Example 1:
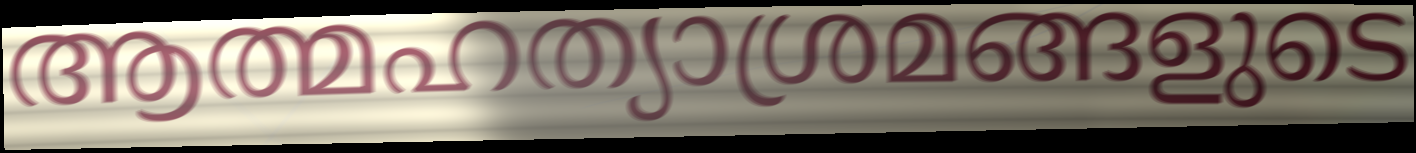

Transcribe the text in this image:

ആത്മഹത്യാശ്രമങ്ങളുടെ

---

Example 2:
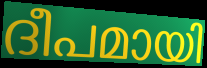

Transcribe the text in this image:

ദീപമായി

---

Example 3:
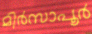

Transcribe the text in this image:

മിർസാപൂർ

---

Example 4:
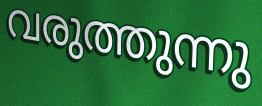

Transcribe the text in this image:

വരുത്തുന്നു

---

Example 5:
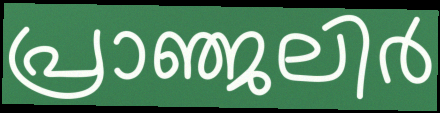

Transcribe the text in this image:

പ്രാഞ്ജലിർ